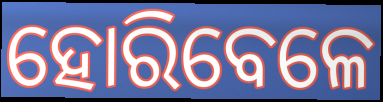
ହୋରିବେଳେ